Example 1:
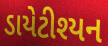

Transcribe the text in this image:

ડાયેટીશ્યન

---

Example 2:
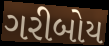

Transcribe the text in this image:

ગરીબોય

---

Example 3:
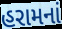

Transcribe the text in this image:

હરામનાં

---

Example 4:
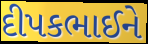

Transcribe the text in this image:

દીપકભાઈને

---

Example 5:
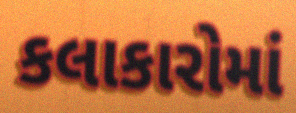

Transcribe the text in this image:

કલાકારોમાં